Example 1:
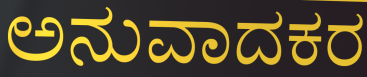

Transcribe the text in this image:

ಅನುವಾದಕರ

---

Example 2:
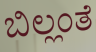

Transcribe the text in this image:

ಬಿಲ್ಲಂತೆ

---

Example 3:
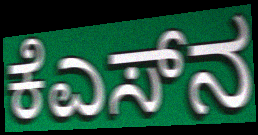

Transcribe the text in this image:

ಕೆಎಸ್‌ನ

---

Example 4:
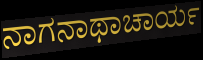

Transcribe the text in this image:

ನಾಗನಾಥಾಚಾರ್ಯ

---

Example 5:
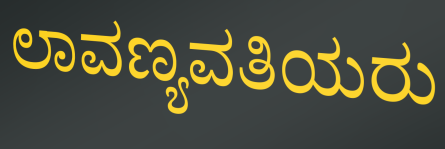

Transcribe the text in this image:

ಲಾವಣ್ಯವತಿಯರು